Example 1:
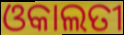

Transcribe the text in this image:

ଓକାଲତୀ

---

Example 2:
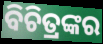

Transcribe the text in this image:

ବିଚିତ୍ରଙ୍କର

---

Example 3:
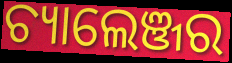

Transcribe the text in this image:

ଚ୍ୟାଲେଞ୍ଜର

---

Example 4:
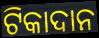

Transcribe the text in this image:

ଟିକାଦାନ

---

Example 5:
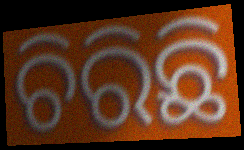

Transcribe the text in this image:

ଚିରିଛି